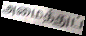
அமைத்துப்